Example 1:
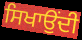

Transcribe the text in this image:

ਸਿਖਾਉਂਦੀ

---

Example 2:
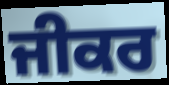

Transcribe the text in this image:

ਜੀਕਰ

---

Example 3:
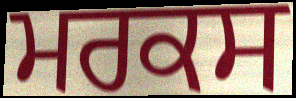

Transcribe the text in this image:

ਮਰਕਸ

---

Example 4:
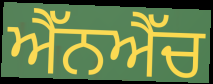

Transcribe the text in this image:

ਐੱਨਐੱਚ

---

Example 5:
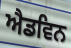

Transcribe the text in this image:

ਐਡਵਿਨ